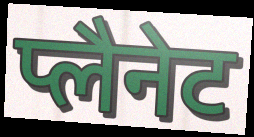
प्लैनेट